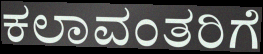
ಕಲಾವಂತರಿಗೆ